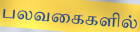
பலவகைகளில்